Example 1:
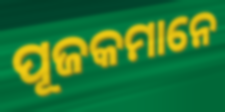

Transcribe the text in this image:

ପୂଜକମାନେ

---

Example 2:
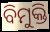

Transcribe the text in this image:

ବିମୁକ୍ତି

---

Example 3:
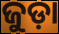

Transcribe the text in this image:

ଜୁଡ଼ା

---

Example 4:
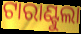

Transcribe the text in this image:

ଟାରାଣ୍ଟୁଲା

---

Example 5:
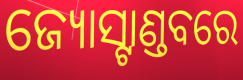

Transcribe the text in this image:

ଜ୍ୟୋସ୍ଟାଣ୍ଡବରେ